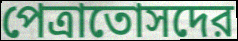
পেত্রাতোসদের